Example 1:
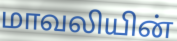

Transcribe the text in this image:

மாவலியின்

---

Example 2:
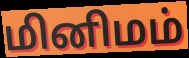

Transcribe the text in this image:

மினிமம்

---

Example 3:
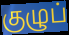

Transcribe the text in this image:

குழுப்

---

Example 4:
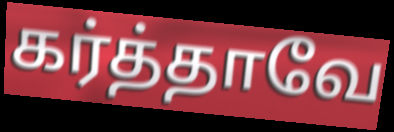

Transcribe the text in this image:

கர்த்தாவே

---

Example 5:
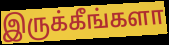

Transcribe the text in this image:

இருக்கீங்களா